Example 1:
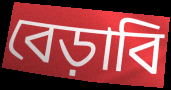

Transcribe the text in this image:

বেড়াবি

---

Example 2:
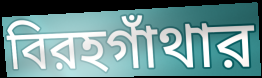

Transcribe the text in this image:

বিরহগাঁথার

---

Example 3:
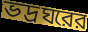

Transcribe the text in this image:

ভদ্রঘরের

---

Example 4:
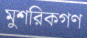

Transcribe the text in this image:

মুশরিকগণ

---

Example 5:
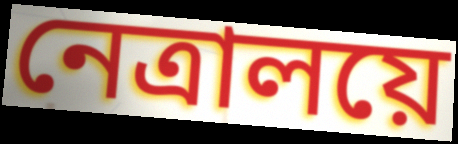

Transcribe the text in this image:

নেত্রালয়ে